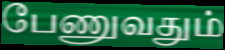
பேணுவதும்